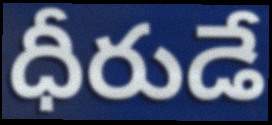
ధీరుడే